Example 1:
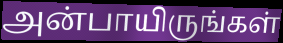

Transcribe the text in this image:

அன்பாயிருங்கள்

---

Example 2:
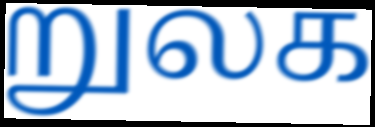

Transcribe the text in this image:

றுலக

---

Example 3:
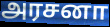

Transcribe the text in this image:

அரசனா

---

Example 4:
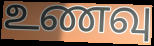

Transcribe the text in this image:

உணவு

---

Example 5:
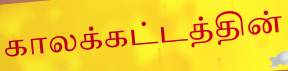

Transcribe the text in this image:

காலக்கட்டத்தின்